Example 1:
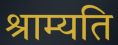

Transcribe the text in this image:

श्राम्यति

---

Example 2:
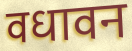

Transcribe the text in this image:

वधावन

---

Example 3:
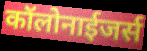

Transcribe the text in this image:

कॉलोनाईजर्स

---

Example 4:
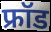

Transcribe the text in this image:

फ्रॉड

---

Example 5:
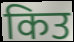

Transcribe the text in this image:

किउ